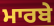
ਮਾਰਬੇ